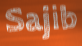
Sajib